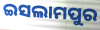
ଇସଲାମପୁର